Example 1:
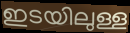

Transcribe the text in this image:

ഇടയിലുള്ള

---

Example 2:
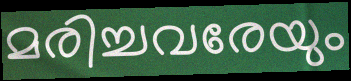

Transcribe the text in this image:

മരിച്ചവരേയും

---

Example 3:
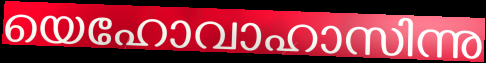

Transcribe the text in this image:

യെഹോവാഹാസിന്നു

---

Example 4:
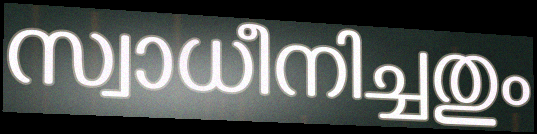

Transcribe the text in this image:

സ്വാധീനിച്ചതും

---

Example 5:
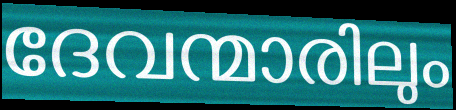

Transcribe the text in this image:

ദേവന്മാരിലും